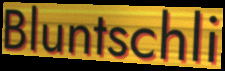
Bluntschli